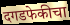
दगडफेकीचा